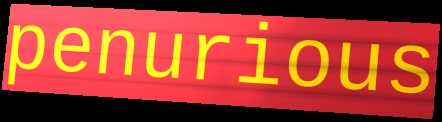
penurious